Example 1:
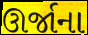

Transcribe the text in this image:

ઊર્જાના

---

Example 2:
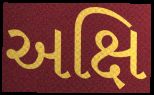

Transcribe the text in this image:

અક્ષિ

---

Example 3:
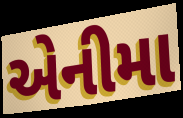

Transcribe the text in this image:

એનીમા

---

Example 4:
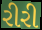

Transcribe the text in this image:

રીરી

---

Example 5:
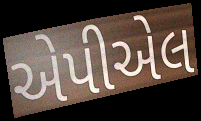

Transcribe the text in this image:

એપીએલ